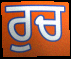
ਰੁਚ